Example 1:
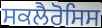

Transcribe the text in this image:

ਸਕਲੈਰੋਸਿਸ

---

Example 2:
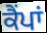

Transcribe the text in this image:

ਕੈੰਪਾਂ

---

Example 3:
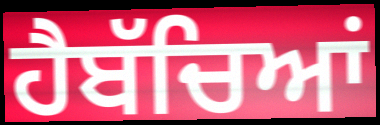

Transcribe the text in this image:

ਹੈਬੱਚਿਆਂ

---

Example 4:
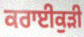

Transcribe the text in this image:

ਕਰਾਈਕੁੜੀ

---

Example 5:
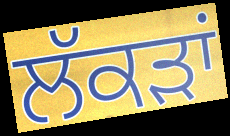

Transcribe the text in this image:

ਲੱਕੜਾਂ